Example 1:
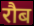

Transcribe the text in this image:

रौब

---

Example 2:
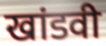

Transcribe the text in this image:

खांडवी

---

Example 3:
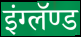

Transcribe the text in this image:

इंग्लॅण्ड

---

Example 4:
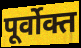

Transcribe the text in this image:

पूर्वोक्त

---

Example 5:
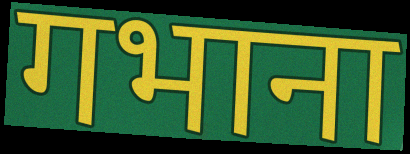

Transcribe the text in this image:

गभाना